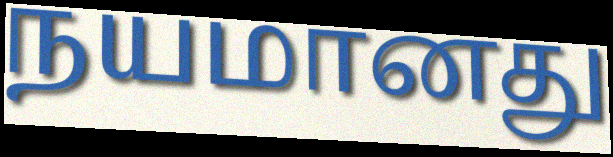
நயமானது